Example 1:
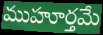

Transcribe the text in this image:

ముహూర్తమే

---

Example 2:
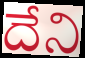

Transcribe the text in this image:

దేని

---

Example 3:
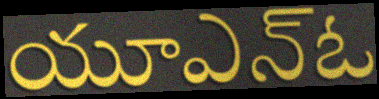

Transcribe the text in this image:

యూఎన్ఓ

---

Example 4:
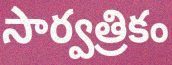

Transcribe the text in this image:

సార్వత్రికం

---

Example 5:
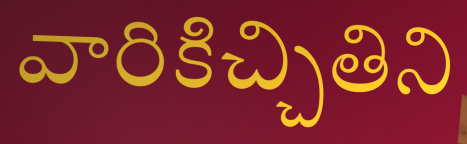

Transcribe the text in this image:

వారికిచ్చితిని